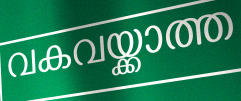
വകവയ്ക്കാത്ത